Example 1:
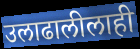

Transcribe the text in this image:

उलाढालीलाही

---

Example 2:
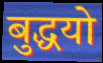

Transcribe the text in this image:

बुद्धयो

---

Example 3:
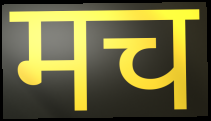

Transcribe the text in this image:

मच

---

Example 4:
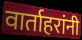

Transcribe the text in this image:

वार्ताहरांनी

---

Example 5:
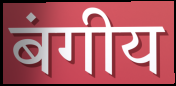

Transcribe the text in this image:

बंगीय